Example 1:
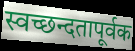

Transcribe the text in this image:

स्वच्छन्दतापूर्वक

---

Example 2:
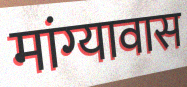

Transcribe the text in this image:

मांग्यावास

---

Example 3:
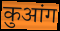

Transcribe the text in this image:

कुआंग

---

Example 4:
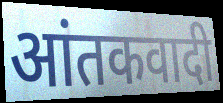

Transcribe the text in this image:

आंतकवादी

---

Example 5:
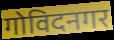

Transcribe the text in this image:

गोविदनगर